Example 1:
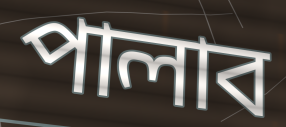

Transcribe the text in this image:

পালাব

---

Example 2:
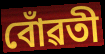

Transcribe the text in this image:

বোঁৱতী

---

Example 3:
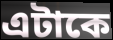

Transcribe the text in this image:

এটাকে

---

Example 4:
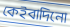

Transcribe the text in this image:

কেইবাদিনো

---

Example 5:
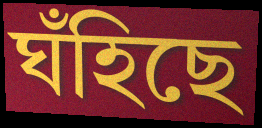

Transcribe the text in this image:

ঘঁহিছে